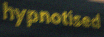
hypnotised